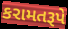
કરામતરૂપે